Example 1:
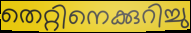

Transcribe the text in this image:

തെറ്റിനെക്കുറിച്ചു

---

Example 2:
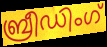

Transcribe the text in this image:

ബ്രീഡിംഗ്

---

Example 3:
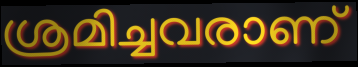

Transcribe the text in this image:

ശ്രമിച്ചവരാണ്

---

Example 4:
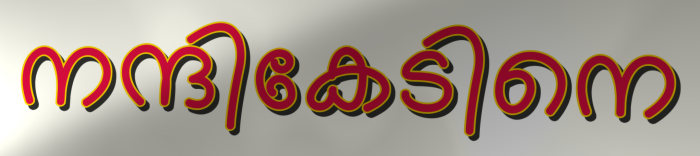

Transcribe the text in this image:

നന്ദികേടിനെ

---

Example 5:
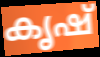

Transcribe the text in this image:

കൃഷ്